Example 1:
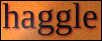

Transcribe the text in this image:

haggle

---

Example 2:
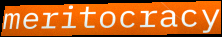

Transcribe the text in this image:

meritocracy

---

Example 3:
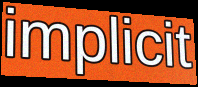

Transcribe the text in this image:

implicit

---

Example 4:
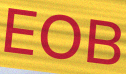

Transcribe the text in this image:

EOB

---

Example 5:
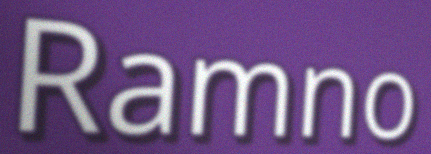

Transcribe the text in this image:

Ramno